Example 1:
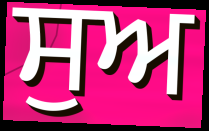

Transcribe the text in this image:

ਸੁਅ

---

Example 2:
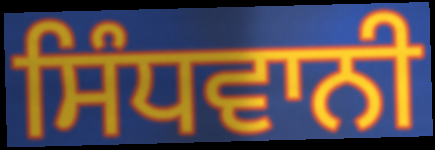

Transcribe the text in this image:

ਸਿੰਧਵਾਨੀ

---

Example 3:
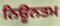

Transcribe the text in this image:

ਨਿਊਨਤਮ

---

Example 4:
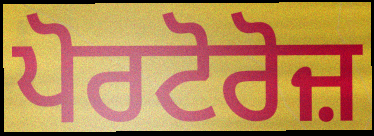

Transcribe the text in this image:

ਪੋਰਟੋਰੋਜ਼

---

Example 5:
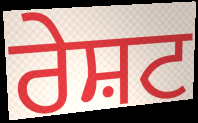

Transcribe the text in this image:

ਰੇਸ਼ਟ